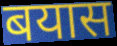
बयास